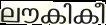
ലൗകികീ